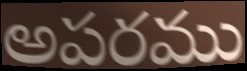
అపరము